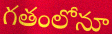
గతంలోనూ